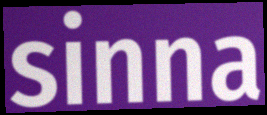
sinna